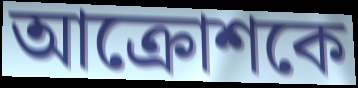
আক্রোশকে